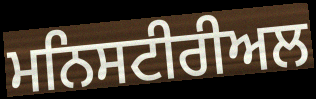
ਮਨਿਸਟੀਰੀਅਲ